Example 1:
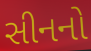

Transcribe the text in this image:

સીનનો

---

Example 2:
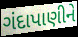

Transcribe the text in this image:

ગંદાપાણીને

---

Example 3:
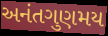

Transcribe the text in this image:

અનંતગુણમય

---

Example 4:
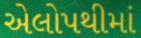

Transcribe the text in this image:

એલોપથીમાં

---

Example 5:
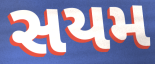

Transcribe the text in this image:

સયમ